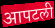
आपटली